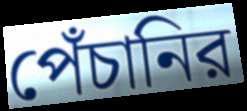
পেঁচানির